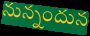
నున్నందున